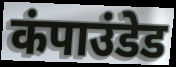
कंपाउंडेड